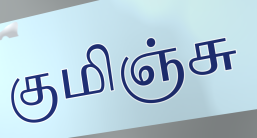
குமிஞ்சு